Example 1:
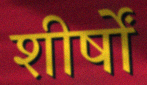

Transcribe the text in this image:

शीर्षों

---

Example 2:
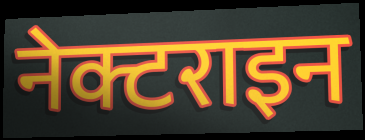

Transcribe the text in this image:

नेक्टराइन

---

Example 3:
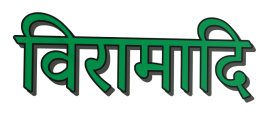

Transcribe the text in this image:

विरामादि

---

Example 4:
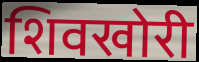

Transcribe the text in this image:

शिवखोरी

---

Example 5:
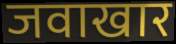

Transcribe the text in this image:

जवाखार